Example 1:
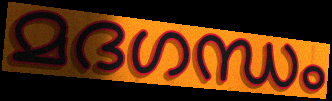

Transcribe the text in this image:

മദഗന്ധം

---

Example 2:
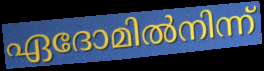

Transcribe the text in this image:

ഏദോമിൽനിന്ന്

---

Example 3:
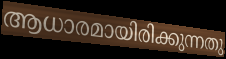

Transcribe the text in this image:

ആധാരമായിരിക്കുന്നതു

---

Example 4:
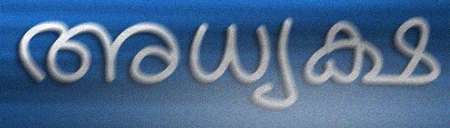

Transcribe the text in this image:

അധ്യക്ഷ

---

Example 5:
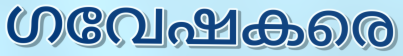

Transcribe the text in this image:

ഗവേഷകരെ